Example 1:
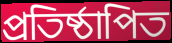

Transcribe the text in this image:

প্ৰতিষ্ঠাপিত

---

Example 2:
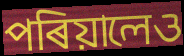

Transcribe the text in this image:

পৰিয়ালেও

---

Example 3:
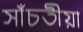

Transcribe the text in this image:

সাঁচতীয়া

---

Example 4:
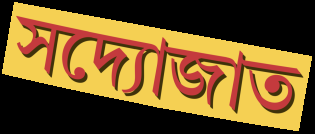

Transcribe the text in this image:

সদ্যোজাত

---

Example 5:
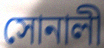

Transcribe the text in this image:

সোনালী